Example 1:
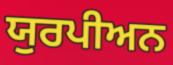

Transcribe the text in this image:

ਯੁਰਪੀਅਨ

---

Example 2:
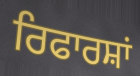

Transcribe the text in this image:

ਰਿਫਾਰਸ਼ਾਂ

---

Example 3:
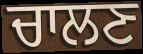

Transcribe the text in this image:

ਚਾਲਣ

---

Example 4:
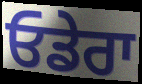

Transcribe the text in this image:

ਓਡੇਰਾ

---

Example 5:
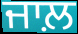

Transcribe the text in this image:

ਜਾਲ਼